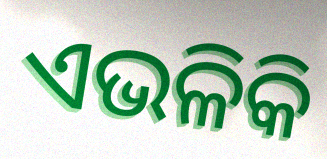
ଏଭଳିକି